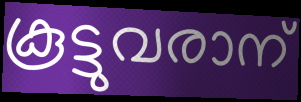
കൂട്ടുവരാന്